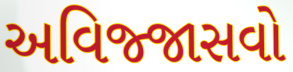
અવિજ્જાસવો